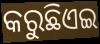
କରୁଛିଏଇ